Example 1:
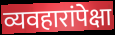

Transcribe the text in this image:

व्यवहारांपेक्षा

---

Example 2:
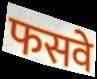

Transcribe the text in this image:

फसवे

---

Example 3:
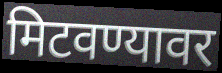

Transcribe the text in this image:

मिटवण्यावर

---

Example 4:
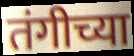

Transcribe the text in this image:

तंगीच्या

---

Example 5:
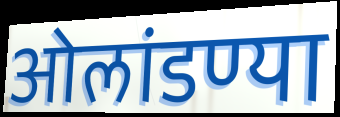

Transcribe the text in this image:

ओलांडण्या